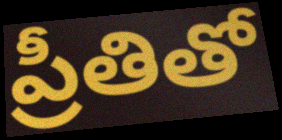
ప్రీతితో